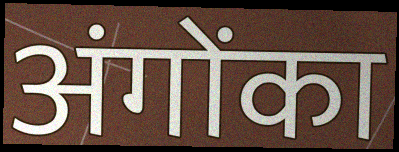
अंगोंका